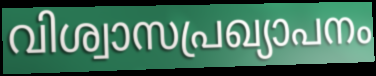
വിശ്വാസപ്രഖ്യാപനം